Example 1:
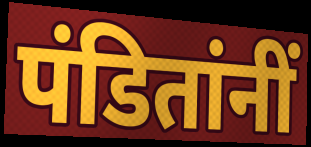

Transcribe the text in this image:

पंडितांनीं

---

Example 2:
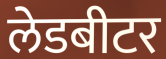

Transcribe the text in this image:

लेडबीटर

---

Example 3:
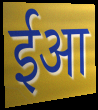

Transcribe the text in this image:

ईआ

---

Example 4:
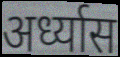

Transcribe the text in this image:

अर्ध्यास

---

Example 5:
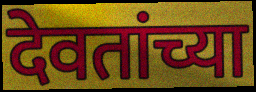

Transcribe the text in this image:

देवतांच्या